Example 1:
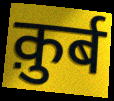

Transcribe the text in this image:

क़ुर्ब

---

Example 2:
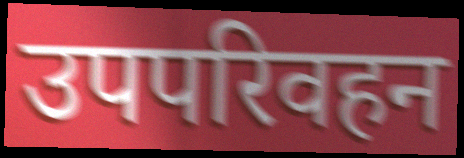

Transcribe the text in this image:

उपपरिवहन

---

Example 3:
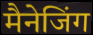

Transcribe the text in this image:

मैनेजिंग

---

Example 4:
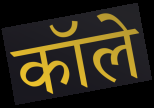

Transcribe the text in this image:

कॉले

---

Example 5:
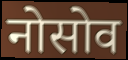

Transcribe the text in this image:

नोसोव